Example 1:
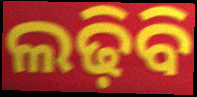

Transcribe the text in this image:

ଲଢ଼ିବି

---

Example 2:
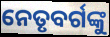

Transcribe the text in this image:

ନେତୃବର୍ଗଙ୍କୁ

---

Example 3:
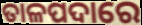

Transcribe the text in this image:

ତାଳପଦାରେ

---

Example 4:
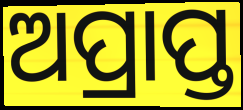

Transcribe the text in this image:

ଅପ୍ରାପ୍ତ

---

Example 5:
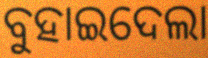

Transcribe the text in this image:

ବୁହାଇଦେଲା